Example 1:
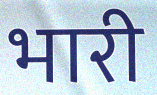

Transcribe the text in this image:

भारी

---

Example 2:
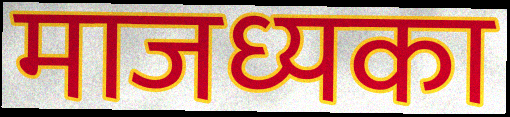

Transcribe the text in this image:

माजध्यका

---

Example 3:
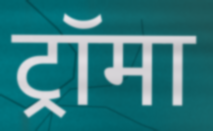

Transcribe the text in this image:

ट्रॉमा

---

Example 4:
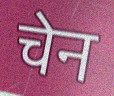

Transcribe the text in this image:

चेन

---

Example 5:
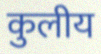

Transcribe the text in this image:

कुलीय